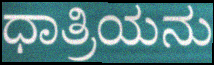
ಧಾತ್ರಿಯನು